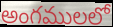
అంగములలో